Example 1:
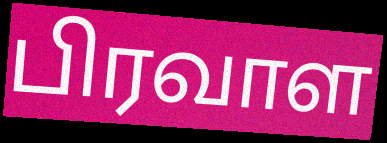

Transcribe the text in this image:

பிரவாள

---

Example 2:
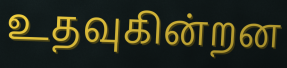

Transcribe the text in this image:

உதவுகின்றன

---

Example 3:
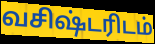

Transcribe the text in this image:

வசிஷ்டரிடம்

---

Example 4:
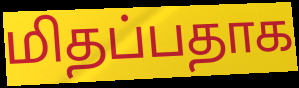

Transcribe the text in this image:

மிதப்பதாக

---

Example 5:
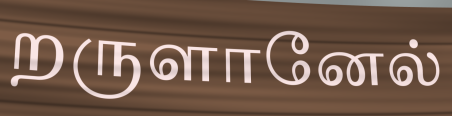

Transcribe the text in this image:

றருளானேல்